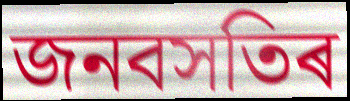
জনবসতিৰ